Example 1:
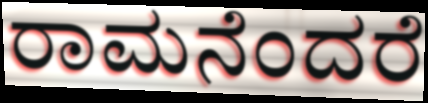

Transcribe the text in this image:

ರಾಮನೆಂದರೆ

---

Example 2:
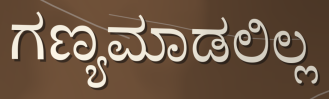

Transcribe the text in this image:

ಗಣ್ಯಮಾಡಲಿಲ್ಲ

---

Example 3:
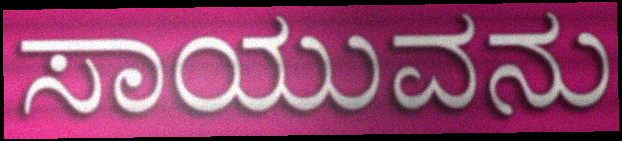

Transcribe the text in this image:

ಸಾಯುವನು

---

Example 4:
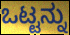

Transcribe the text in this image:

ಒಟ್ಟನ್ನು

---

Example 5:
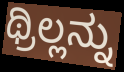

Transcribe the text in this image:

ಥ್ರಿಲ್ಲನ್ನು